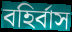
বহির্বাস